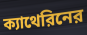
ক্যাথেরিনের